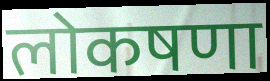
लोकषणा